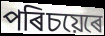
পৰিচয়েৰে